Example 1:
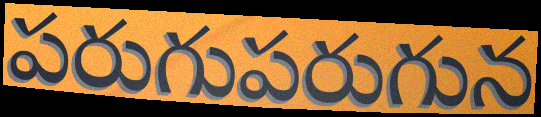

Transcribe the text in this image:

పరుగుపరుగున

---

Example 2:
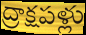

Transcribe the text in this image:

ద్రాక్షపళ్లు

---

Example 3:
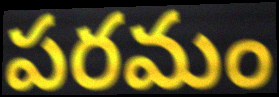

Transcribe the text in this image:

పరమం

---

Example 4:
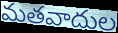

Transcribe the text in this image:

మతవాదుల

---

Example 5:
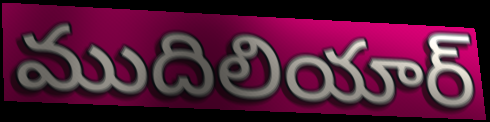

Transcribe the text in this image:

ముదిలియార్